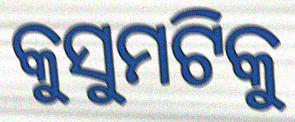
କୁସୁମଟିକୁ